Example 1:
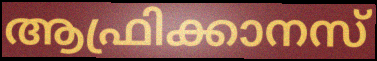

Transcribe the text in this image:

ആഫ്രിക്കാനസ്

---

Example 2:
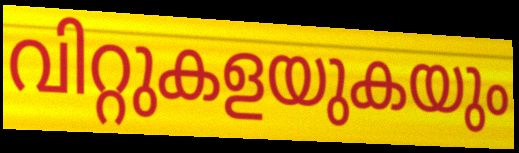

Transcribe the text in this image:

വിറ്റുകളയുകയും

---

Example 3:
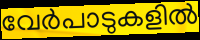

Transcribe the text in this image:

വേർപാടുകളിൽ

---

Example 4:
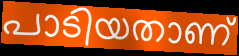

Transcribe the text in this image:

പാടിയതാണ്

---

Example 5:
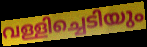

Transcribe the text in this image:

വള്ളിച്ചെടിയും